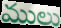
ములు